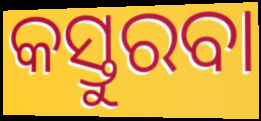
କସ୍ତୁରବା